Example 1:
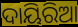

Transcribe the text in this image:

ଦାୟିରିଆ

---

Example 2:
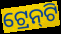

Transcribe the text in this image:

ଟ୍ରେନ୍‌ଟି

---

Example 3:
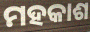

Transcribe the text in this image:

ମହକାଶ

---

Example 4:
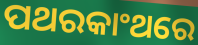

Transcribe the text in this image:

ପଥରକାଂଥରେ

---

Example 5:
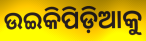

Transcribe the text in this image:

ଉଇକିପିଡ଼ିଆକୁ